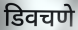
डिवचणे